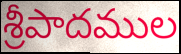
శ్రీపాదముల